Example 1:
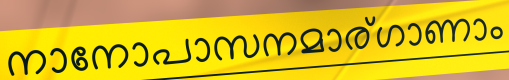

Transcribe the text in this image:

നാനോപാസനമാര്ഗാണാം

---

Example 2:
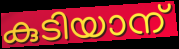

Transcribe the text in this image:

കുടിയാന്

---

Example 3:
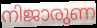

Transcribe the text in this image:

നിജാരുണ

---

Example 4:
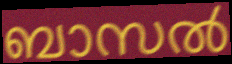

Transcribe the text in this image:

ബാസൽ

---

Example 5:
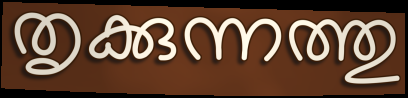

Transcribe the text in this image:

തൃക്കുന്നത്തു